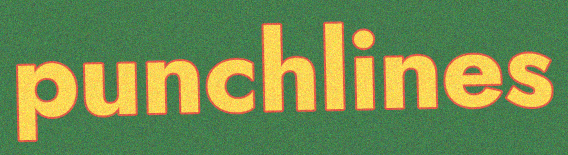
punchlines